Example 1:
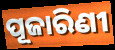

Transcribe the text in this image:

ପୂଜାରିଣୀ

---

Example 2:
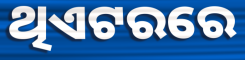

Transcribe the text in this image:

ଥିଏଟରରେ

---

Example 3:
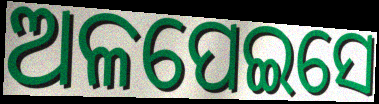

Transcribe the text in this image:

ଅଳପେଇସେ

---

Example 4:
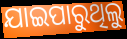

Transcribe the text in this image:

ଯାଇପାରୁଥିଲୁ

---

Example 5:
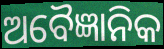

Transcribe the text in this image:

ଅବୈଜ୍ଞାନିକ